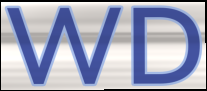
WD